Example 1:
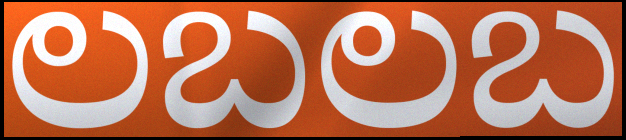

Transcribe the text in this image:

లబలబ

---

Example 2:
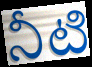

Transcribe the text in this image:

నీటి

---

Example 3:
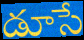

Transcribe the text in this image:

డూసే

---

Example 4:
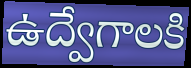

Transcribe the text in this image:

ఉద్వేగాలకి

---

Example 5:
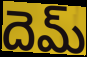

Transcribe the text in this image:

దెమ్